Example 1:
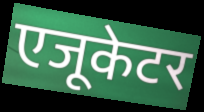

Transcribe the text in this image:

एजूकेटर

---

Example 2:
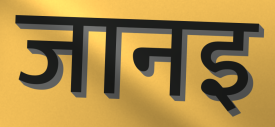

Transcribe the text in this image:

जानइ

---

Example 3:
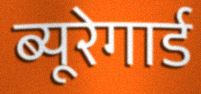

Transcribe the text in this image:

ब्यूरेगार्ड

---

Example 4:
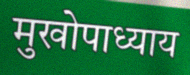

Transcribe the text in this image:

मुखोपाध्‍याय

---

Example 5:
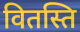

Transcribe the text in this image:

वितस्ति